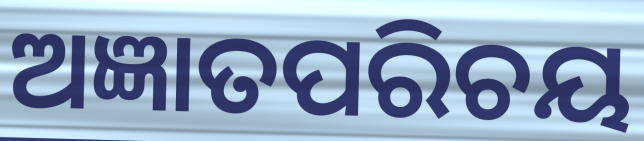
ଅଜ୍ଞାତପରିଚୟ